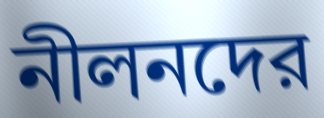
নীলনদের